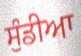
ਸੁੰਡੀਆ